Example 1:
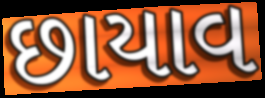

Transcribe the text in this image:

છાયાવ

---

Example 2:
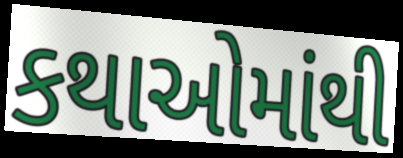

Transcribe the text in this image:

કથાઓમાંથી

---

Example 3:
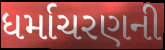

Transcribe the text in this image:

ધર્માચરણની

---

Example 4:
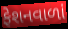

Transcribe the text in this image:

ફેશનવાળાં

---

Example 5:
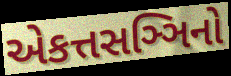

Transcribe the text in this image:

એકત્તસઞ્ઞિનો